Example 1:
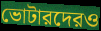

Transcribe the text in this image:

ভোটারদেরও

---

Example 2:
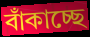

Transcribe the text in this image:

বাঁকাচ্ছে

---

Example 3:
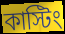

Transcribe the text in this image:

কাস্টিং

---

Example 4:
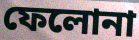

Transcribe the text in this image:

ফেলোনা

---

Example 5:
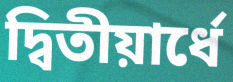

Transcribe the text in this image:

দ্বিতীয়ার্ধে